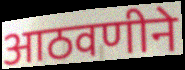
आठवणीने